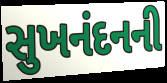
સુખનંદનની